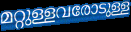
മറ്റുള്ളവരോടുള്ള